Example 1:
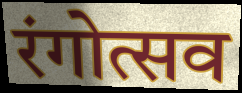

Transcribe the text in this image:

रंगोत्सव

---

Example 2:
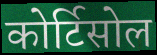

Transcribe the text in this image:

कोर्टिसोल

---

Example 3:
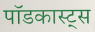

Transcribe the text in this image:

पॉडकास्ट्स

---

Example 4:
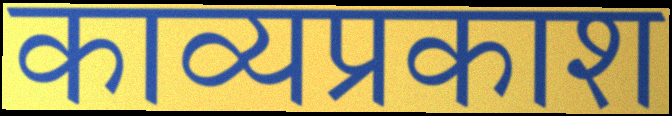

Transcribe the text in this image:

काव्यप्रकाश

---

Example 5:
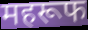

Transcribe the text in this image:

महरूफ